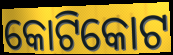
କୋଟିକୋଟ